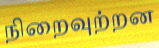
நிறைவுற்றன